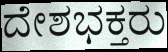
ದೇಶಭಕ್ತರು